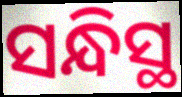
ସନ୍ଧିସ୍ଥ